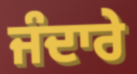
ਜੰਦਾਰੇ